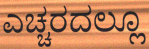
ಎಚ್ಚರದಲ್ಲೂ